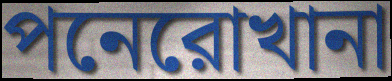
পনেরোখানা